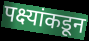
पक्ष्यांकडून